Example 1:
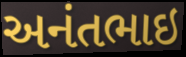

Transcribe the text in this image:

અનંતભાઇ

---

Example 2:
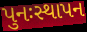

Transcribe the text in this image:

પુનઃસ્થાપન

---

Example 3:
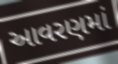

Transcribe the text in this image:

આવરણમાં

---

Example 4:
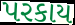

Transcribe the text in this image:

પરકાય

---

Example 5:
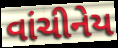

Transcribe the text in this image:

વાંચીનેય